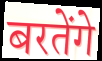
बरतेंगे